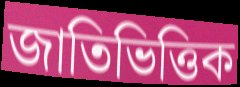
জাতিভিত্তিক